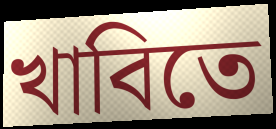
খাবিতে